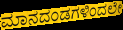
ಮಾನದಂಡಗಳಿಂದಲೇ